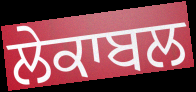
ਲੇਕਾਬਲ